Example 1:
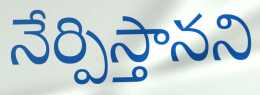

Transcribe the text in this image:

నేర్పిస్తానని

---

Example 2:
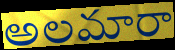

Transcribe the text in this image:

అలమారా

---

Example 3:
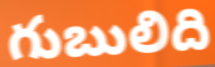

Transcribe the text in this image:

గుబులిది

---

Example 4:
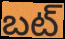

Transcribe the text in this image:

బట్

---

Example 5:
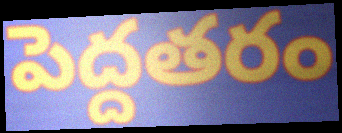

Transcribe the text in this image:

పెద్దతరం